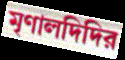
মৃণালদিদির